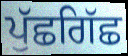
ਪੁੱਛਗਿੱਛ